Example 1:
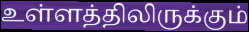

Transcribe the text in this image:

உள்ளத்திலிருக்கும்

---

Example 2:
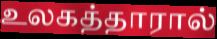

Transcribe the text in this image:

உலகத்தாரால்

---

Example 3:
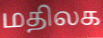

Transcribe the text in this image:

மதிலக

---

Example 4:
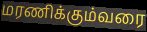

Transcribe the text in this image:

மரணிக்கும்வரை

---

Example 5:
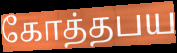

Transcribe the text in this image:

கோத்தபய